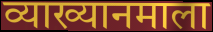
व्याख्यानमाला